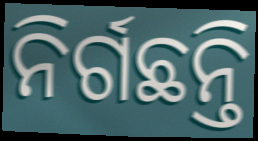
ନିର୍ଗଛନ୍ତି